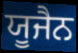
ਯੂਜੈਨ